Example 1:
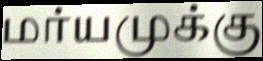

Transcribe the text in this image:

மர்யமுக்கு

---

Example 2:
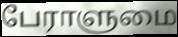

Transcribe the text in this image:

பேராளுமை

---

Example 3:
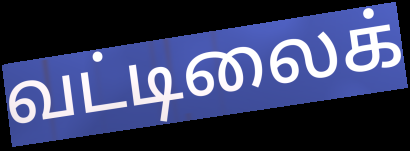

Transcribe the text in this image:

வட்டிலைக்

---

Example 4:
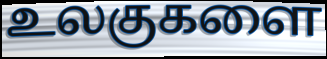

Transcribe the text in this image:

உலகுகளை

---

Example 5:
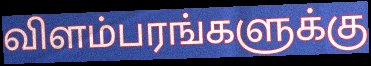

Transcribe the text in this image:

விளம்பரங்களுக்கு